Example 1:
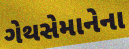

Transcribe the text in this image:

ગેથસેમાનેના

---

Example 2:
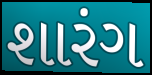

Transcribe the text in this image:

શારંગ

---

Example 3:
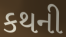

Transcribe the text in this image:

કથની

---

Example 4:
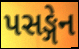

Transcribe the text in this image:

પસઙ્ગેન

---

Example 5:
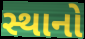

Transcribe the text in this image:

સ્થાનો